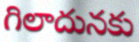
గిలాదునకు